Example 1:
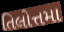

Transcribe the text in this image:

તિલોત્તમા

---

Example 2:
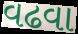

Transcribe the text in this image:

વઢવા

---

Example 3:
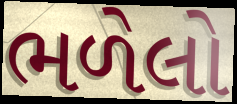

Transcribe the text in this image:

ભળેલો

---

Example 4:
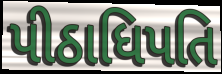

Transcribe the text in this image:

પીઠાધિપતિ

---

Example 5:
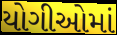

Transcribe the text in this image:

યોગીઓમાં